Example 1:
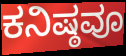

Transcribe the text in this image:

ಕನಿಷ್ಠವೂ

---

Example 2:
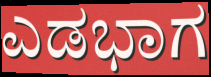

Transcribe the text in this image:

ಎಡಭಾಗ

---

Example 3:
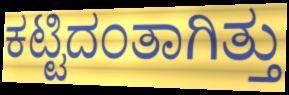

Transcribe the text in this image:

ಕಟ್ಟಿದಂತಾಗಿತ್ತು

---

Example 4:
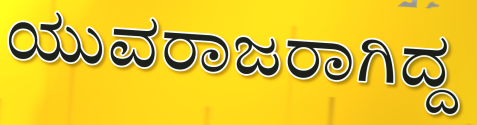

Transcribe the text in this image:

ಯುವರಾಜರಾಗಿದ್ದ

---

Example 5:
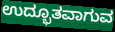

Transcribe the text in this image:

ಉದ್ಭೂತವಾಗುವ